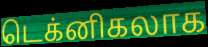
டெக்னிகலாக